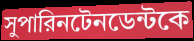
সুপারিনটেনডেন্টকে